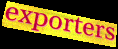
exporters